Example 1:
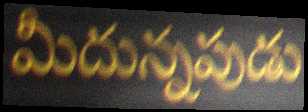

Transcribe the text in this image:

మీదున్నపుడు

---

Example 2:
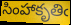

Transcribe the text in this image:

సింహాకృతిఁ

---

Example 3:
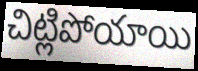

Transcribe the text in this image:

చిట్లిపోయాయి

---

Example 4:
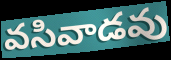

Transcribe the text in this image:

వసివాడవు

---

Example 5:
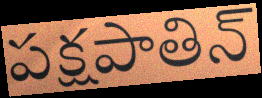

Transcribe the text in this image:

పక్షపాతిన్